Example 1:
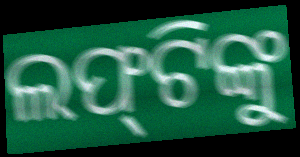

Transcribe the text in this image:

ଲଫ୍‌ଟିଙ୍କୁ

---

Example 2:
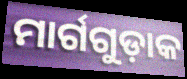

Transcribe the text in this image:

ମାର୍ଗଗୁଡ଼ାକ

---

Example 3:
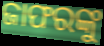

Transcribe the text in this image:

ଜାଫରଙ୍କୁ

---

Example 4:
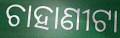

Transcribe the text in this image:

ଚାହାଣୀଟା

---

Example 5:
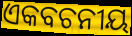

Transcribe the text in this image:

ଏକବଚନୀୟ